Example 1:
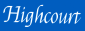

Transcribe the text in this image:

Highcourt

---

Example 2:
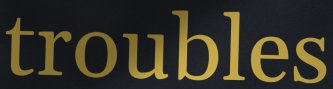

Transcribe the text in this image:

troubles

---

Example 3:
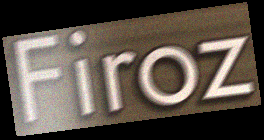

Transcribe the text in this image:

Firoz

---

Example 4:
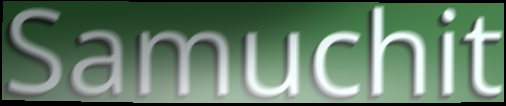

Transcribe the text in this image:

Samuchit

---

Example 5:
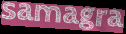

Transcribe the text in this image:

samagra